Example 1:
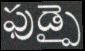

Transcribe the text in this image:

ఫుడ్పై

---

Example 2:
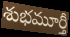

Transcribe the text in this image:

శుభమూర్తీ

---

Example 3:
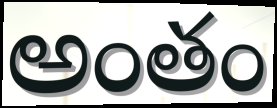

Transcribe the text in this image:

అంతం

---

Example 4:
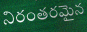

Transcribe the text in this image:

నిరంతరమైన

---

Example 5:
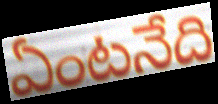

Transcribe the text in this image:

ఏంటనేది